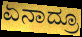
ಏನಾದ್ರೂ